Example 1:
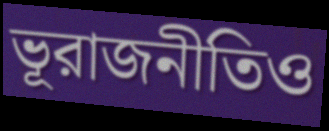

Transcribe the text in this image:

ভূরাজনীতিও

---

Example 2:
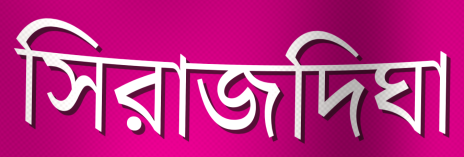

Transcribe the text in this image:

সিরাজদিঘা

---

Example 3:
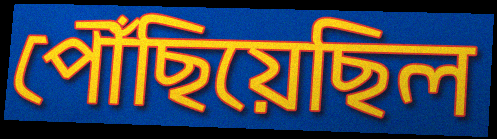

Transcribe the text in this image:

পৌঁছিয়েছিল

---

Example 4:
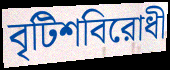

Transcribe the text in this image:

বৃটিশবিরোধী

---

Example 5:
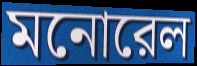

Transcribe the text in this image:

মনোরেল